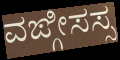
ವಙ್ಗೀಸಸ್ಸ